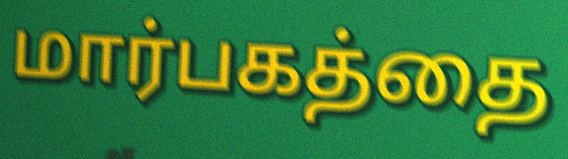
மார்பகத்தை